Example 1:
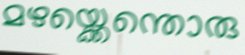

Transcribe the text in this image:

മഴയ്ക്കെന്തൊരു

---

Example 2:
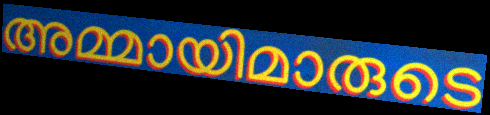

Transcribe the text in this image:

അമ്മായിമാരുടെ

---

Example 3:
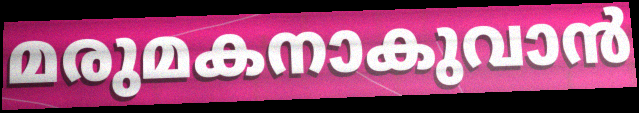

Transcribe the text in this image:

മരുമകനാകുവാൻ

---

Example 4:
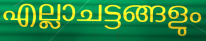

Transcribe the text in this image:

എല്ലാചട്ടങ്ങളും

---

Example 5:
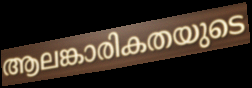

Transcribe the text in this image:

ആലങ്കാരികതയുടെ